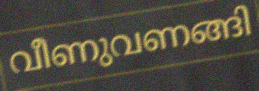
വീണുവണങ്ങി